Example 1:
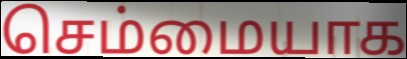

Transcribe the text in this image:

செம்மையாக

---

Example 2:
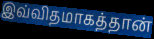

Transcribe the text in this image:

இவ்விதமாகத்தான்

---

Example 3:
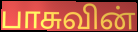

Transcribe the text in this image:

பாசுவின்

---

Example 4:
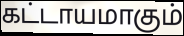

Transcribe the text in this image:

கட்டாயமாகும்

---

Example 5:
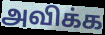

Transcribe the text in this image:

அவிக்க